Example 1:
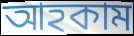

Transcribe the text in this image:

আহকাম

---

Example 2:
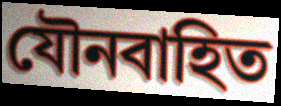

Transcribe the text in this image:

যৌনবাহিত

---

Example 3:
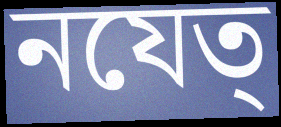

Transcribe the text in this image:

নযেত্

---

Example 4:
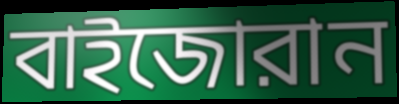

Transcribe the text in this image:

বাইজোরান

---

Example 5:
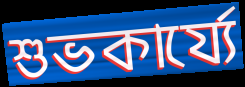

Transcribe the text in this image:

শুভকার্য্যে